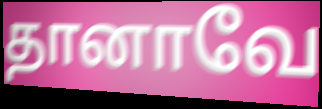
தானாவே